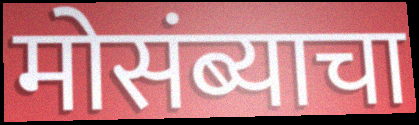
मोसंब्याचा